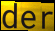
der